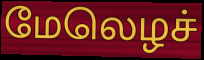
மேலெழச்